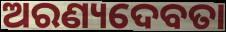
ଅରଣ୍ୟଦେବତା